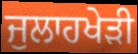
ਜੁਲਾਹਖੇੜੀ